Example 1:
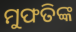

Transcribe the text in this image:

ମୁଫତିଙ୍କ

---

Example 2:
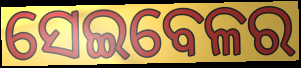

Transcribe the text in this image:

ସେଇବେଳର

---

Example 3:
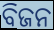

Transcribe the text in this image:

ବିଜନ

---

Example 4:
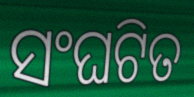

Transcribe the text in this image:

ସଂଘଟିତ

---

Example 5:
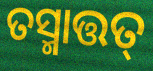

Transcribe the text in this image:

ତସ୍ମାତ୍ତତ୍